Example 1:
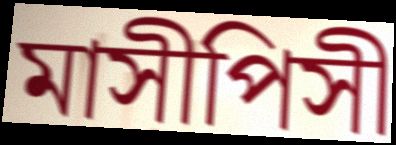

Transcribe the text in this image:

মাসীপিসী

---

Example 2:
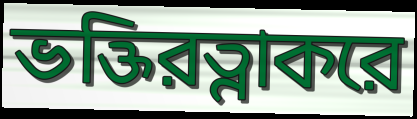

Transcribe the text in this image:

ভক্তিরত্নাকরে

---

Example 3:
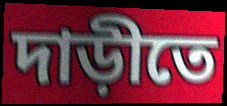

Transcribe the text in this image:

দাড়ীতে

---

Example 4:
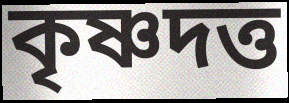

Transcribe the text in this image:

কৃষ্ণদত্ত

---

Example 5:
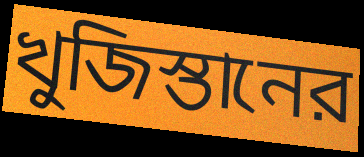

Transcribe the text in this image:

খুজিস্তানের